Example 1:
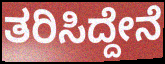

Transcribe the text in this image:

ತರಿಸಿದ್ದೇನೆ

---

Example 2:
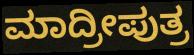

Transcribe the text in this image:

ಮಾದ್ರೀಪುತ್ರ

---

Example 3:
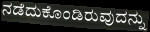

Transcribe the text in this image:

ನಡೆದುಕೊಂಡಿರುವುದನ್ನು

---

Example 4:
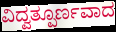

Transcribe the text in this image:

ವಿದ್ವತ್ಪೂರ್ಣವಾದ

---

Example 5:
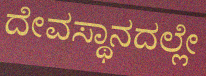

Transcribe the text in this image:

ದೇವಸ್ಥಾನದಲ್ಲೇ